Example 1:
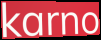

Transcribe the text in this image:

karno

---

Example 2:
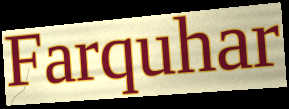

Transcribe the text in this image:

Farquhar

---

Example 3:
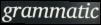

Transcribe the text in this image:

grammatic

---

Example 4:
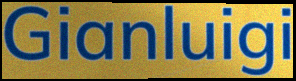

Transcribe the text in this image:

Gianluigi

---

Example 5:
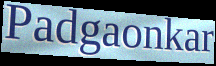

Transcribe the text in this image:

Padgaonkar